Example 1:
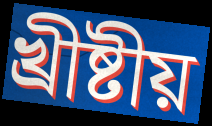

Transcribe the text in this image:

খ্ৰীষ্টীয়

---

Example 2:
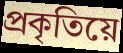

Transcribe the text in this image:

প্ৰকৃতিয়ে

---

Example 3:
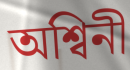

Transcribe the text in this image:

অশ্বিনী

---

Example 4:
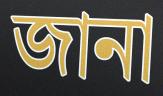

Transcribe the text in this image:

জানা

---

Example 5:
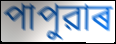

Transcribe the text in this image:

পাপুৱাৰ